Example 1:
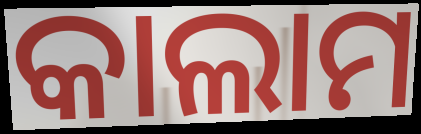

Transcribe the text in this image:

କାଲାମ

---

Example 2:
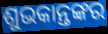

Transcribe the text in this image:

ଶୁଭକାନ୍ତଙ୍କର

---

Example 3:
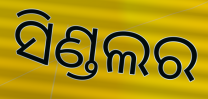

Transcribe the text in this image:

ସିଣ୍ଡଲର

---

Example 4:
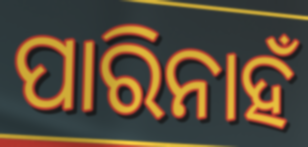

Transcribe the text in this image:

ପାରିନାହଁ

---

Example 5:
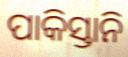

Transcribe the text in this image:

ପାକିସ୍ତାନି